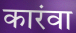
कारंवा